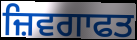
ਜ਼ਿਵਗਾਫਤ